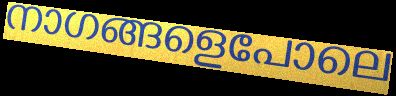
നാഗങ്ങളെപോലെ